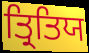
ਤ੍ਰਿਤਿਯ